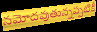
నమోదవుతున్నప్పటికీ